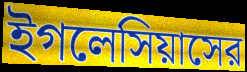
ইগলেসিয়াসের